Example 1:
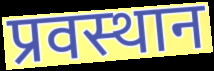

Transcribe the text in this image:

प्रवस्थान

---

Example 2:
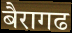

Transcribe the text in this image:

बैरागढ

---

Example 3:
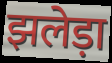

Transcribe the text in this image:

झलेड़ा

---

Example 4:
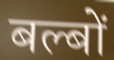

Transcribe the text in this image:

बल्बों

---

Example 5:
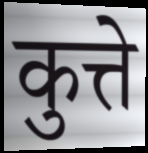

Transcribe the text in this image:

कुत्ते